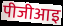
पीजीआइ